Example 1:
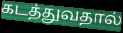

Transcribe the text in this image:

கடத்துவதால்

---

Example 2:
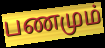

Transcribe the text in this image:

பணமும்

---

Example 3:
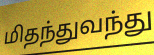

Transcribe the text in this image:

மிதந்துவந்து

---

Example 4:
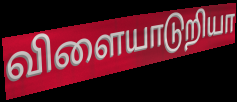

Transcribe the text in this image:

விளையாடுறியா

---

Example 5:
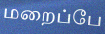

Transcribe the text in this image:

மறைப்பே